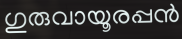
ഗുരുവായൂരപ്പൻ